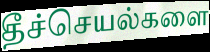
தீச்செயல்களை